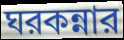
ঘরকন্নার